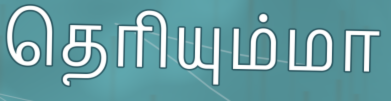
தெரியும்மா